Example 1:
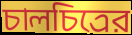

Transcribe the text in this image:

চালচিত্রের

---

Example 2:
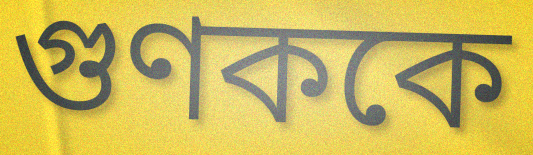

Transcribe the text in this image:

গুণককে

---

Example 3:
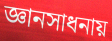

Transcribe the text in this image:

জ্ঞানসাধনায়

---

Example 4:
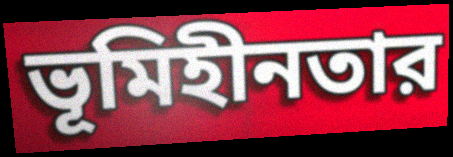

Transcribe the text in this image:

ভূমিহীনতার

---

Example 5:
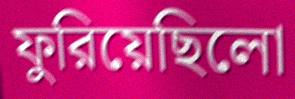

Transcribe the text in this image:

ফুরিয়েছিলো